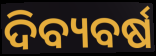
ଦିବ୍ୟବର୍ଷ